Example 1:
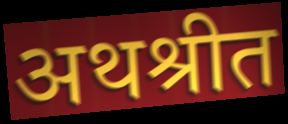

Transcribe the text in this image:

अथश्रीत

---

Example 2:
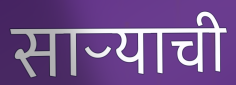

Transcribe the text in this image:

साऱ्याची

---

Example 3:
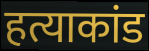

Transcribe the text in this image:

हत्याकांड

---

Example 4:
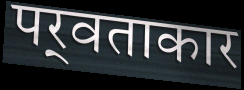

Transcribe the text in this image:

पर्वताकार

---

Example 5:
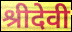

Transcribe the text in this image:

श्रीदेवी